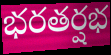
భరతర్షభ